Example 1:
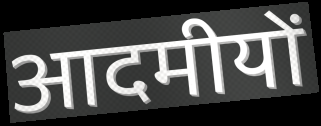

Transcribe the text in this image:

आदमीयों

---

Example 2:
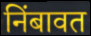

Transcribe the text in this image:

निंबावत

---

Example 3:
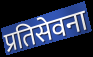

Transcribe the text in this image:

प्रतिसेवना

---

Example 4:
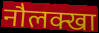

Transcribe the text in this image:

नौलक्खा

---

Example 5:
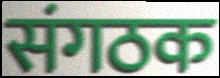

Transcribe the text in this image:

संगठक